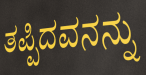
ತಪ್ಪಿದವನನ್ನು